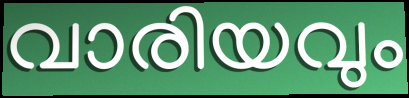
വാരിയവും